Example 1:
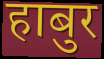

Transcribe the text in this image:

हाबुर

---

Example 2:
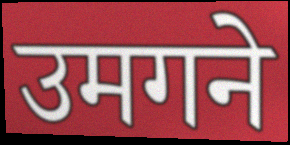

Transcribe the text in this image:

उमगने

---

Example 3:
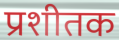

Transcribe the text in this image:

प्रशीतक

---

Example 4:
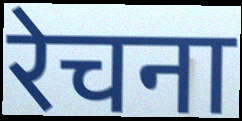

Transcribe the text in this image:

रेचना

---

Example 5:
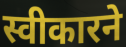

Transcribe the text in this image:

स्वीकारने